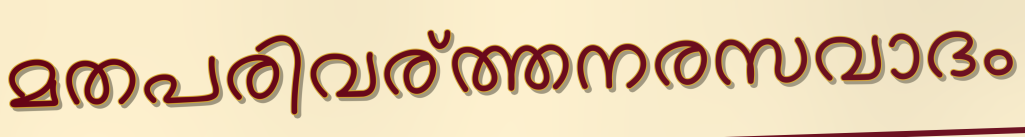
മതപരിവര്ത്തനരസവാദം